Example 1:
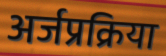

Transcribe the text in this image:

अर्जप्रक्रिया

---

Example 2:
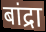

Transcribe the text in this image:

बांद्रा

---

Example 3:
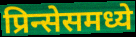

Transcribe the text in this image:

प्रिन्सेसमध्ये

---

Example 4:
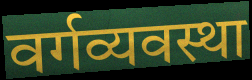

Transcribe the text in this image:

वर्गव्यवस्था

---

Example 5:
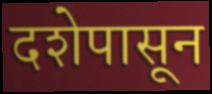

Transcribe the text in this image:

दशेपासून